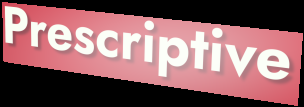
Prescriptive